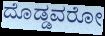
ದೊಡ್ಡವರೋ